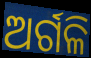
ଅର୍ଗଳି